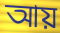
আয়